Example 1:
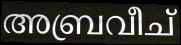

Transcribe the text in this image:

അബ്രവീച്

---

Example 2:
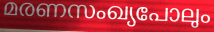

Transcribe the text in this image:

മരണസംഖ്യപോലും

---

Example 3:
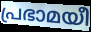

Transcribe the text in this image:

പ്രഭാമയീ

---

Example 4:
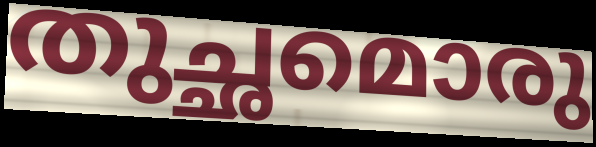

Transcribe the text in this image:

തുച്ഛമൊരു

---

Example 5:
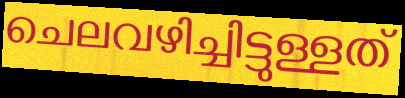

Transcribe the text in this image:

ചെലവഴിച്ചിട്ടുള്ളത്